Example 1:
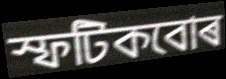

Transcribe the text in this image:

স্ফটিকবোৰ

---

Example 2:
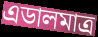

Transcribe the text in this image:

এডালমাত্ৰ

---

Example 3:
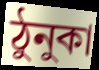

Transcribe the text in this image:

ঠুনুকা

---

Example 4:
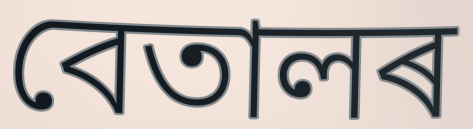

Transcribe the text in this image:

বেতালৰ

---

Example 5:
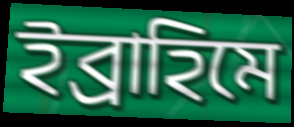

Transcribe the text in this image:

ইব্ৰাহিমে